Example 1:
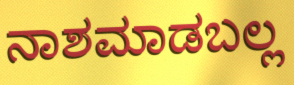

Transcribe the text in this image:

ನಾಶಮಾಡಬಲ್ಲ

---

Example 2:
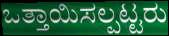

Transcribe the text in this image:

ಒತ್ತಾಯಿಸಲ್ಪಟ್ಟರು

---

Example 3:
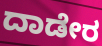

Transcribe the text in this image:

ದಾಡೇರ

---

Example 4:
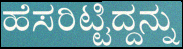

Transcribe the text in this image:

ಹೆಸರಿಟ್ಟಿದ್ದನ್ನು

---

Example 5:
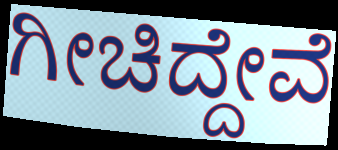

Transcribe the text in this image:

ಗೀಚಿದ್ದೇವೆ